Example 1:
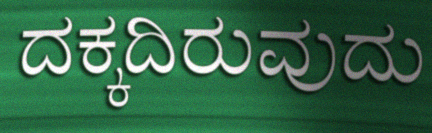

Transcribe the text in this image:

ದಕ್ಕದಿರುವುದು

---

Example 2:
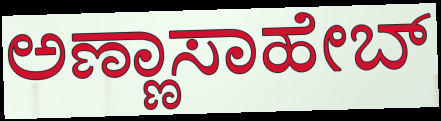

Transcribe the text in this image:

ಅಣ್ಣಾಸಾಹೇಬ್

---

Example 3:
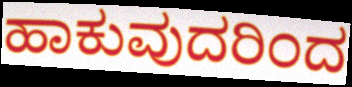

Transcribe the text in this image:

ಹಾಕುವುದರಿಂದ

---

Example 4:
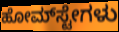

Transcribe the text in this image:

ಹೋಮ್‌ಸ್ಟೇಗಳು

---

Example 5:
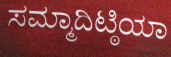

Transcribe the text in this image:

ಸಮ್ಮಾದಿಟ್ಠಿಯಾ